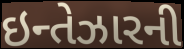
ઇન્તેઝારની